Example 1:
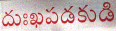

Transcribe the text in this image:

దుఃఖపడకుడి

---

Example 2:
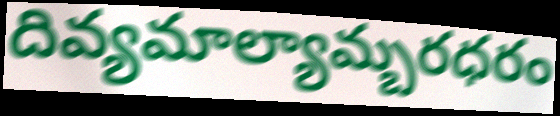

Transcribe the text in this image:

దివ్యమాల్యామ్బరధరం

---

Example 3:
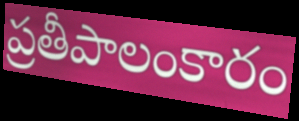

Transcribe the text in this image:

ప్రతీపాలంకారం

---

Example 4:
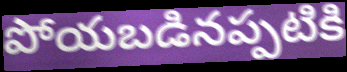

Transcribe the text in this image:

పోయబడినప్పటికి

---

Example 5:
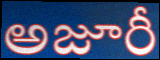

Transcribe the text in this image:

అజూరీ